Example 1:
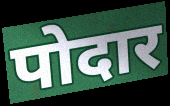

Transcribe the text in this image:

पोदार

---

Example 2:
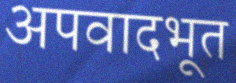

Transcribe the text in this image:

अपवादभूत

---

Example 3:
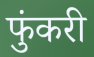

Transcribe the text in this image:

फुंकरी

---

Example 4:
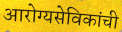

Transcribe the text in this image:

आरोग्यसेविकांची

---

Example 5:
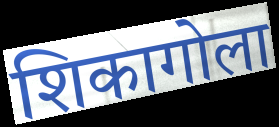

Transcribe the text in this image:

शिकागोला